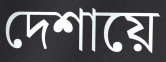
দেশায়ে